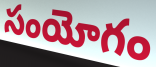
సంయోగం